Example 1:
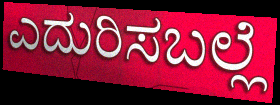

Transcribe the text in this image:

ಎದುರಿಸಬಲ್ಲೆ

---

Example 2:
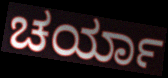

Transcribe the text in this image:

ಚರ್ಯಾ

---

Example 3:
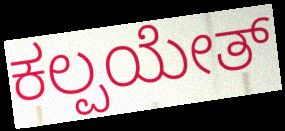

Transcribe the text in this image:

ಕಲ್ಪಯೇತ್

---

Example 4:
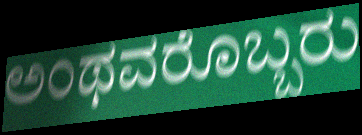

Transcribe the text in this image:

ಅಂಥವರೊಬ್ಬರು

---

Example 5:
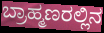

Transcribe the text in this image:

ಬ್ರಾಹ್ಮಣರಲ್ಲಿನ